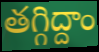
తగ్గిద్దాం